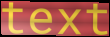
text